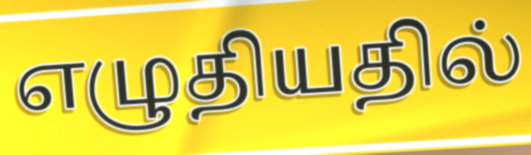
எழுதியதில்